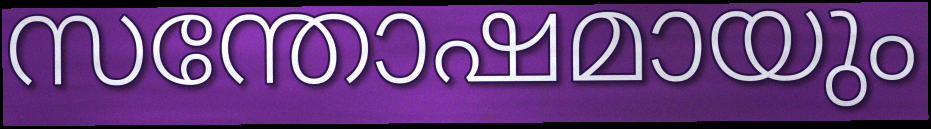
സന്തോഷമായും